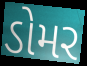
ડોમર